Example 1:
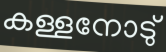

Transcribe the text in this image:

കള്ളനോടു്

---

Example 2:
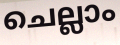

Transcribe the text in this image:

ചെല്ലാം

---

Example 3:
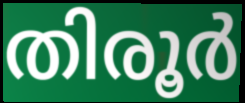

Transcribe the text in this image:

തിരൂർ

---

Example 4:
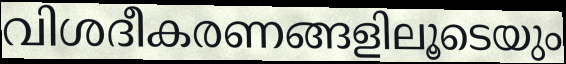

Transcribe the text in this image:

വിശദീകരണങ്ങളിലൂടെയും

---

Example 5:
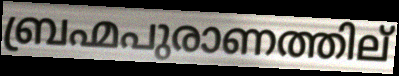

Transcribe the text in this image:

ബ്രഹ്മപുരാണത്തില്